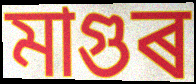
মাগুৰ